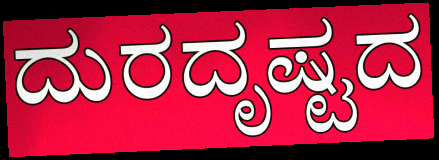
ದುರದೃಷ್ಟದ